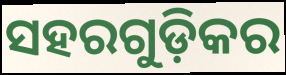
ସହରଗୁଡ଼ିକର